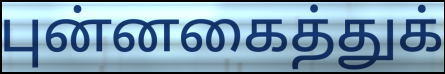
புன்னகைத்துக்